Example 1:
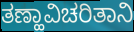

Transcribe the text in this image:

ತಣ್ಹಾವಿಚರಿತಾನಿ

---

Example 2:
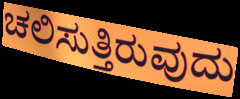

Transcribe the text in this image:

ಚಲಿಸುತ್ತಿರುವುದು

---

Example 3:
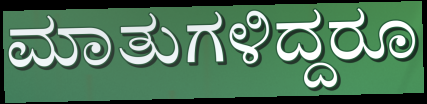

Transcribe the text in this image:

ಮಾತುಗಳಿದ್ದರೂ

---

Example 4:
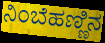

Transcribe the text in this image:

ನಿಂಬೆಹಣ್ಣಿನ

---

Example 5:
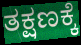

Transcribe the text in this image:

ತಕ್ಷಣಕ್ಕೆ